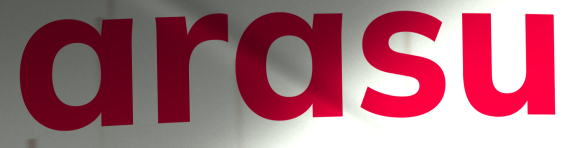
arasu